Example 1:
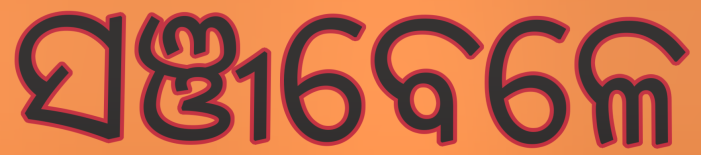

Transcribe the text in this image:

ସଞ୍ଜବେଳେ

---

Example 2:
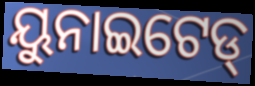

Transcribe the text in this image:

ୟୁନାଇଟେଡ୍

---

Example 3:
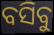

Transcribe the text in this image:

ବସିବୁ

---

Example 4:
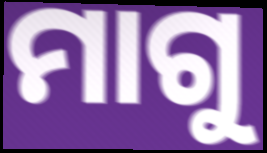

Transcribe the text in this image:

ମାଗୁ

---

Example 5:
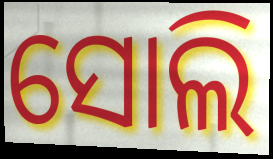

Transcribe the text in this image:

ସୋଲି